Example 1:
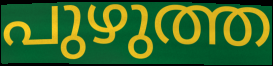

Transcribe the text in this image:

പുഴുത്ത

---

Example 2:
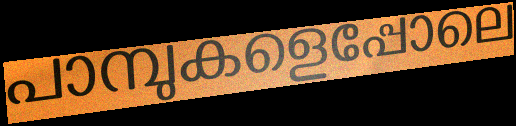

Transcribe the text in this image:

പാമ്പുകളെപ്പോലെ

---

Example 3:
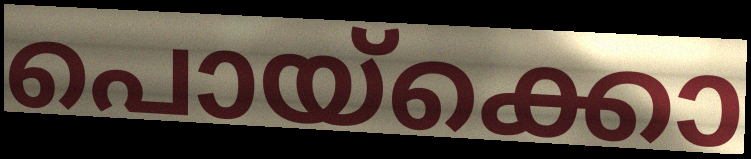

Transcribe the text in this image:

പൊയ്ക്കൊ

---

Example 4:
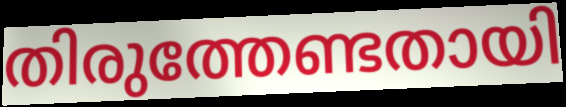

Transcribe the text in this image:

തിരുത്തേണ്ടതായി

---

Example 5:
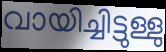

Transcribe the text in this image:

വായിച്ചിട്ടുള്ളു